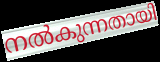
നൽകുന്നതായി